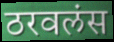
ठरवलंस